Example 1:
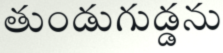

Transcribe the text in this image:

తుండుగుడ్డను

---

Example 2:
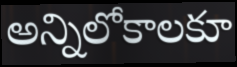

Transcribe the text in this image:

అన్నిలోకాలకూ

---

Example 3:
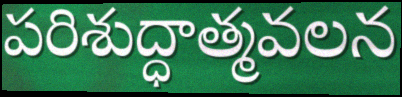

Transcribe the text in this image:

పరిశుద్ధాత్మవలన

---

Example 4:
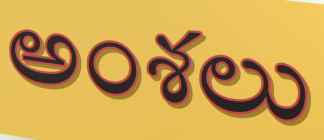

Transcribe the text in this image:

అంశలు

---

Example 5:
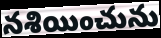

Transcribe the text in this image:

నశియించును